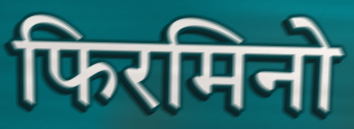
फिरमिनो